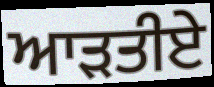
ਆੜਤੀਏ